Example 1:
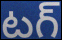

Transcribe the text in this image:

టగ్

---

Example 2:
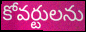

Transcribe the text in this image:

కోవర్టులను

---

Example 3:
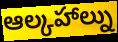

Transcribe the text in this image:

ఆల్కహాల్ను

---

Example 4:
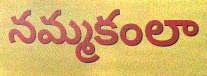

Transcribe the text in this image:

నమ్మకంలా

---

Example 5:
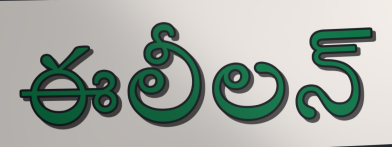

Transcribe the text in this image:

ఈలీలన్